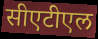
सीएटीएल